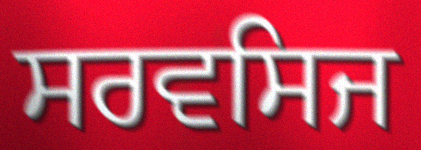
ਸਰਵਸਿਜ